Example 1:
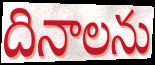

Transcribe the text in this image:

దినాలను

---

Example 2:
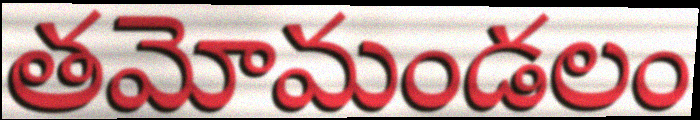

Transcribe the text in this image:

తమోమండలం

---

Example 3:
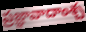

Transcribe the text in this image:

ప్రజ్ఞావాదాంశ్చ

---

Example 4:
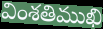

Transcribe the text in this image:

వింశతిముఖి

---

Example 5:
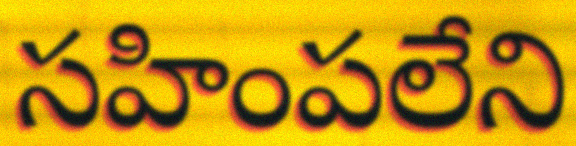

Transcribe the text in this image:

సహింపలేని